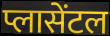
प्लासेंटल